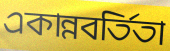
একান্নবর্তিতা